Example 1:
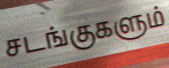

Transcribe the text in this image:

சடங்குகளும்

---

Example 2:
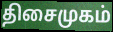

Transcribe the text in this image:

திசைமுகம்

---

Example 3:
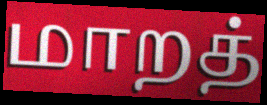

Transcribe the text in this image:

மாறத்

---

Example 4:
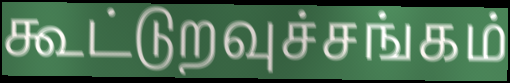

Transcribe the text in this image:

கூட்டுறவுச்சங்கம்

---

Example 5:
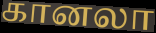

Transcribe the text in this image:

கானலா